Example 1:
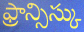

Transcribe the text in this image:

ఫ్రాన్సిస్కు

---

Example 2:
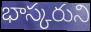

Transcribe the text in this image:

భాస్కరుని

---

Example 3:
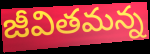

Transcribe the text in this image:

జీవితమన్న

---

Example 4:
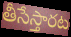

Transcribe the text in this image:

తీసేస్తారట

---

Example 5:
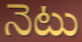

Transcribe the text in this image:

నెటు